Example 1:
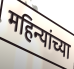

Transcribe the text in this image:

महिन्यांच्या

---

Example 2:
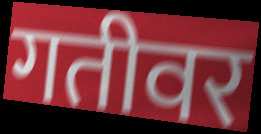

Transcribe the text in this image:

गतीवर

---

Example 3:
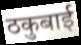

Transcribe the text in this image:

ठकुबाई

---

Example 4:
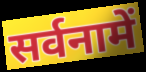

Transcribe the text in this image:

सर्वनामें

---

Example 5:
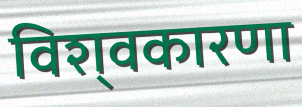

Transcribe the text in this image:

विश्वकारणा